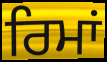
ਰਿਮਾਂ